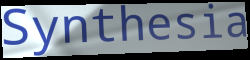
Synthesia